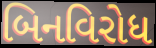
બિનવિરોધ